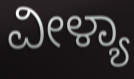
ವೀಳ್ಯಾ